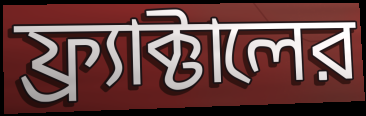
ফ্র্যাক্টালের